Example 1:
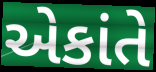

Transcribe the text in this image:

એકાંતે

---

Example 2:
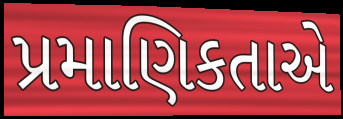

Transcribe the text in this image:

પ્રમાણિકતાએ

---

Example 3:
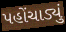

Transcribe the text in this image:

પહોંચાડ્યું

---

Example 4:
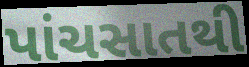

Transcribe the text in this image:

પાંચસાતથી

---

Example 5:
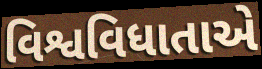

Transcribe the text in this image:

વિશ્વવિધાતાએ